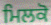
ਮਿਲਕੋ